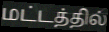
மட்டத்தில்